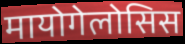
मायोगेलोसिस